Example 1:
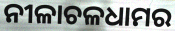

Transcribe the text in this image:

ନୀଳାଚଳଧାମର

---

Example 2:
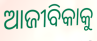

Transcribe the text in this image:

ଆଜୀବିକାକୁ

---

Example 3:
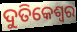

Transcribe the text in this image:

ଦୁତିକେଶ୍ୱର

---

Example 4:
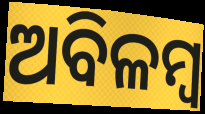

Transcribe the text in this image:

ଅବିଳମ୍ବ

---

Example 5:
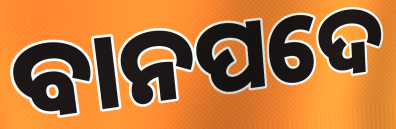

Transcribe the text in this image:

ବାନପଦେ